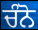
ਚੰਨੋ